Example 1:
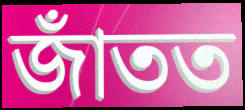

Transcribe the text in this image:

জাঁতত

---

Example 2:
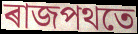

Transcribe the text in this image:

ৰাজপথতে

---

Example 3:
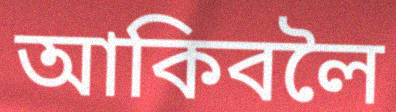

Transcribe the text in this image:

আকিবলৈ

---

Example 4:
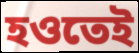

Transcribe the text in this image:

হওতেই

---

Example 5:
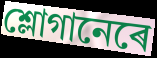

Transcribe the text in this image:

শ্লোগানেৰে